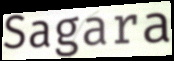
Sagara